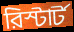
রিস্টার্ট